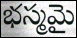
భస్మమై